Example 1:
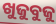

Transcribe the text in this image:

ଖୁଜୁବୁଜୁ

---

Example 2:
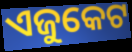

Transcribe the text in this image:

ଏଜୁକେଟ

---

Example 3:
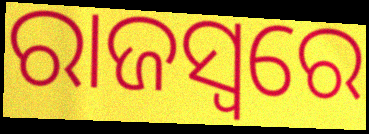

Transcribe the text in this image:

ରାଜସ୍ବରେ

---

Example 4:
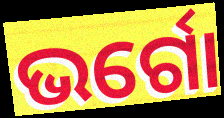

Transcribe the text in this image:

ଭର୍ଗୋ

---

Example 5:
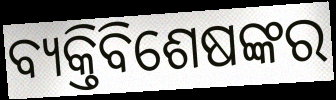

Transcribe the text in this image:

ବ୍ୟକ୍ତିବିଶେଷଙ୍କର